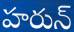
హరున్